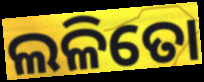
ଲଳିତୋ